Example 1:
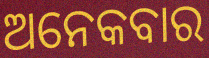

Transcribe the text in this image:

ଅନେକବାର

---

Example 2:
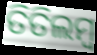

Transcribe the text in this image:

ତିତିଲମ୍ଵ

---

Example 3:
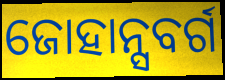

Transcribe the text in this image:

ଜୋହାନ୍ସବର୍ଗ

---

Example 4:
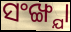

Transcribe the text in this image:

ସଂଙ୍ଖ୍ଯା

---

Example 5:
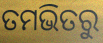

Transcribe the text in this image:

ତମଭିତରୁ